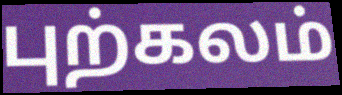
புற்கலம்